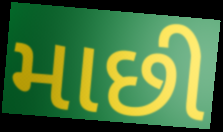
માછી